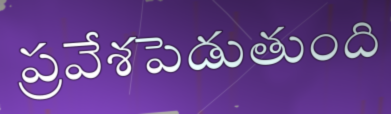
ప్రవేశపెడుతుంది